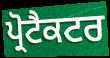
ਪ੍ਰੋਟੈਕਟਰ